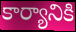
కార్యానికి